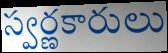
స్వర్ణకారులు